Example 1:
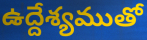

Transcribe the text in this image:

ఉద్దేశ్యముతో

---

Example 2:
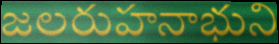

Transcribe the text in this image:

జలరుహనాభుని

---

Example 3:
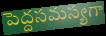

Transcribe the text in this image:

పెద్దసమస్యగా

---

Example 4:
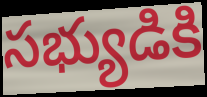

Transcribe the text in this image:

సభ్యుడికి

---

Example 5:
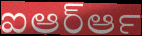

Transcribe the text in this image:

ఐఆర్ఆర్‍